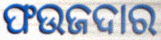
ଫଉଜଦାର